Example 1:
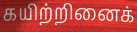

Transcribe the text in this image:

கயிற்றினைக்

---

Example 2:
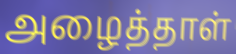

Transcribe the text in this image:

அழைத்தாள்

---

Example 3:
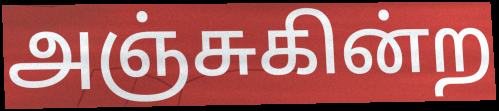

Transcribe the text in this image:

அஞ்சுகின்ற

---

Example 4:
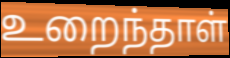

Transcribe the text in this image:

உறைந்தாள்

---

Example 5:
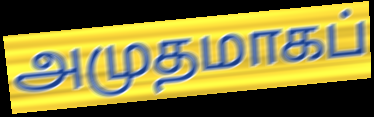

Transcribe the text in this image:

அமுதமாகப்